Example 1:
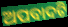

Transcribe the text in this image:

ଅପବାଦଟି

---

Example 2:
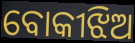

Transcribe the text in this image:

ବୋକୀଝିଅ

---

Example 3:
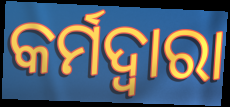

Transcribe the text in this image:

କର୍ମଦ୍ବାରା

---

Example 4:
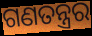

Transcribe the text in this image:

ଗଣତନ୍ତ୍ରର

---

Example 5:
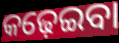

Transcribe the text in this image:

କଢ଼େଇବା